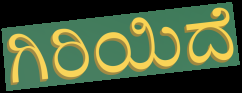
ಗಿರಿಯಿದೆ